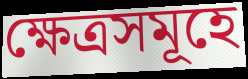
ক্ষেত্ৰসমূহে